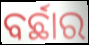
ବର୍ଛାର